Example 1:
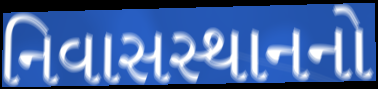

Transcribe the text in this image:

નિવાસસ્થાનનો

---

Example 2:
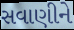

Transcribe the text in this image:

સવાણીને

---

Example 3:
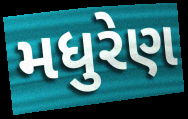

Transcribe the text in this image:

મધુરેણ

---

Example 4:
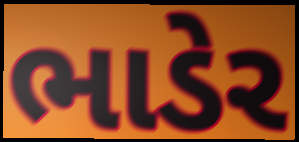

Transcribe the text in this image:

ભાડેર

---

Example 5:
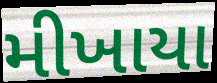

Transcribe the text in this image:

મીખાયા